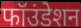
फॉउंडेशन